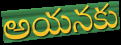
అయనకు